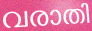
വരാതി